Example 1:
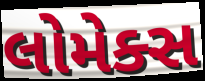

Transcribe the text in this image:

લોમેક્સ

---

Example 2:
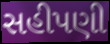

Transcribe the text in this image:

સહીપણી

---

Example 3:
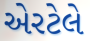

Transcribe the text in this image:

એરટેલે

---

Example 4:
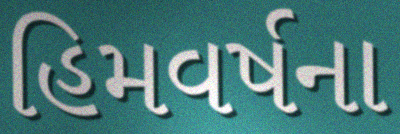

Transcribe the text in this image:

હિમવર્ષના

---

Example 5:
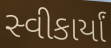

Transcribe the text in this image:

સ્વીકાર્યાં